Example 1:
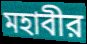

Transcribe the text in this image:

মহাবীর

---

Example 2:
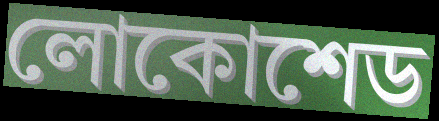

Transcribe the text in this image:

লোকোশেড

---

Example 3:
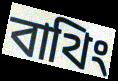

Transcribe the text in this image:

বাথিং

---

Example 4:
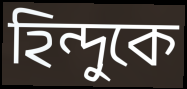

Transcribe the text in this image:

হিন্দুকে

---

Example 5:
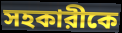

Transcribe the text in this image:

সহকারীকে